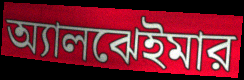
অ্যালঝেইমার